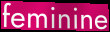
feminine